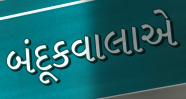
બંદૂકવાલાએ